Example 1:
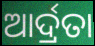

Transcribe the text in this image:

ଆର୍ଦ୍ରତା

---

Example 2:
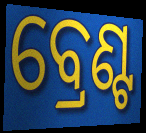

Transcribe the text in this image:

ବ୍ରେଣ୍ଟ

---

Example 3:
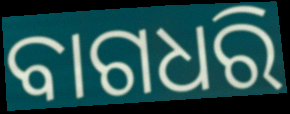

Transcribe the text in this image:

ବାଗଧରି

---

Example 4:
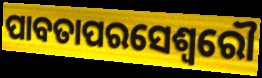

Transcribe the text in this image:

ପାବତାପରସେଶ୍ୱରୌ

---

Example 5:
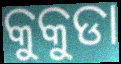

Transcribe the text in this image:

କୁକୁଡା